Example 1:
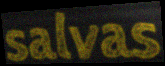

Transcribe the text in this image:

salvas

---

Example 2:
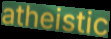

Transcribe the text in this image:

atheistic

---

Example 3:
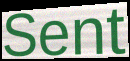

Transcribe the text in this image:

Sent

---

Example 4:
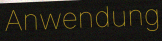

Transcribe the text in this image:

Anwendung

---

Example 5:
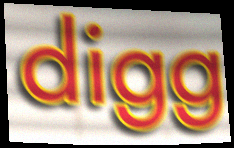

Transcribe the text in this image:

digg